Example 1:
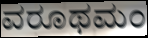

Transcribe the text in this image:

ವರೂಥಮಂ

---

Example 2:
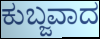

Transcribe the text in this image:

ಕುಬ್ಜವಾದ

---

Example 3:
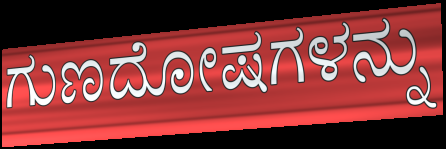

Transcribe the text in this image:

ಗುಣದೋಷಗಳನ್ನು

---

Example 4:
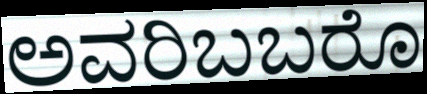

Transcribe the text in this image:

ಅವರಿಬಬರೊ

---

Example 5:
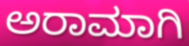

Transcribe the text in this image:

ಅರಾಮಾಗಿ